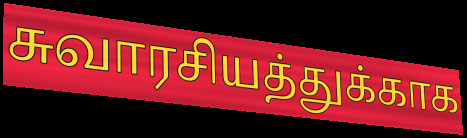
சுவாரசியத்துக்காக